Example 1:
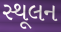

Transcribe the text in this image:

સ્થૂલન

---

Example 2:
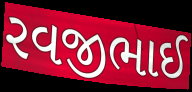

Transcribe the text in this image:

રવજીભાઈ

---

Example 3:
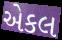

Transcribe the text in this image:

એકલ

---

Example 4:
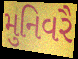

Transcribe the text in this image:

મુનિવરૈ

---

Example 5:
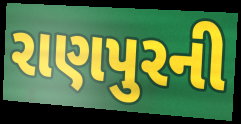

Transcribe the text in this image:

રાણપુરની